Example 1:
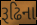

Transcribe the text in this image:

રૂઢિના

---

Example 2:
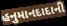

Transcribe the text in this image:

હનુમાનદાદાની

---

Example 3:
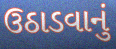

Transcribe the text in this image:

ઉઠાડવાનું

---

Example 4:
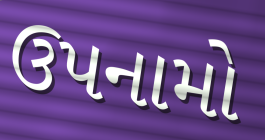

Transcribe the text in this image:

ઉપનામો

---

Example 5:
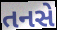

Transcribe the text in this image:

તનસે